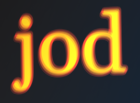
jod